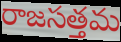
రాజసత్తమ